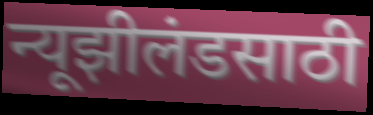
न्यूझीलंडसाठी